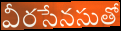
వీరసేనసుతో